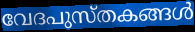
വേദപുസ്തകങ്ങൾ